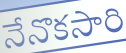
నేనొకసారి